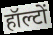
हॉल्टों